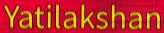
Yatilakshan